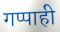
गप्पाही